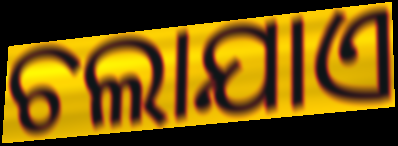
ଚଲାଯାଏ